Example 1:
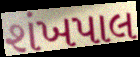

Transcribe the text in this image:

શંખપાલ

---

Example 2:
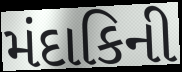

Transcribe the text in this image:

મંદાકિની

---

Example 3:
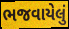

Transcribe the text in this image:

ભજવાયેલું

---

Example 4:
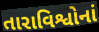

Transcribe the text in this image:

તારાવિશ્વોનાં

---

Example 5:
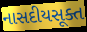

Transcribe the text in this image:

નાસદીયસૂક્ત